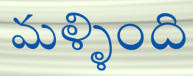
మళ్ళింది